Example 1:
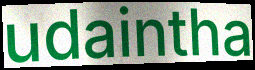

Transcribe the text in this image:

udaintha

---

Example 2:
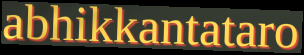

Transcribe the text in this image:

abhikkantataro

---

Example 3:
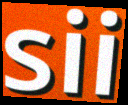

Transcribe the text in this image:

sii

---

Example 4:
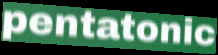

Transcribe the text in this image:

pentatonic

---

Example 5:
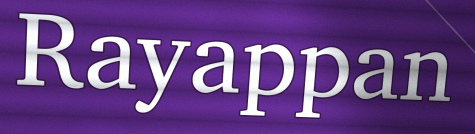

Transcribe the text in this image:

Rayappan